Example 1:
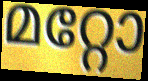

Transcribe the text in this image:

മറ്റോ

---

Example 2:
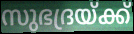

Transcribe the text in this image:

സുഭദ്രയ്ക്ക്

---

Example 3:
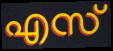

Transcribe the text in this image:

എസ്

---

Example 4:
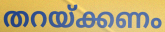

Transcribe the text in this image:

തറയ്ക്കണം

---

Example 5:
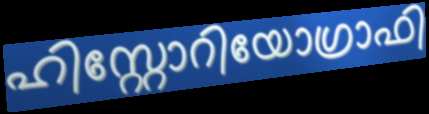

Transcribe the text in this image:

ഹിസ്റ്റോറിയോഗ്രാഫി